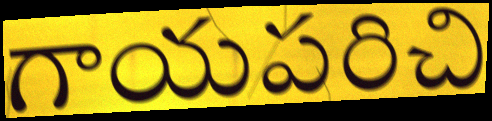
గాయపరిచి